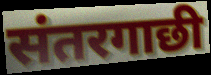
संतरगाछी